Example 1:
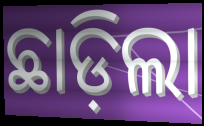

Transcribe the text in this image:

ଛାଡ଼ିଲା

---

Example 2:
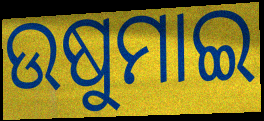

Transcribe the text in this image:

ଉଷୁମାଇ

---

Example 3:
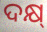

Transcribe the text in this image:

ଦକ୍ଷ୍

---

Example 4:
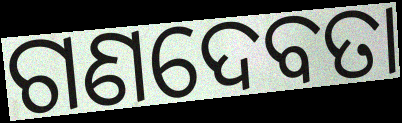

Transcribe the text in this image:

ଗଣଦେବତା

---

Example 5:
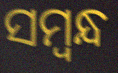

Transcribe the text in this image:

ସମ୍ବନ୍ଧ